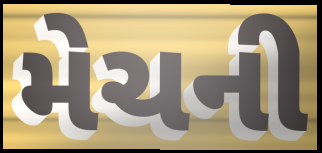
મેચની